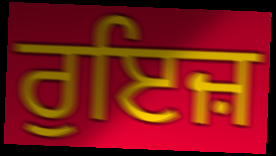
ਰੁਇਜ਼